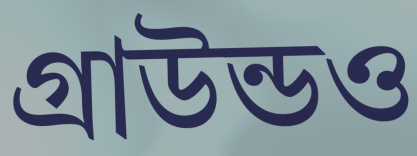
গ্রাউন্ডও